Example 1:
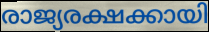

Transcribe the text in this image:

രാജ്യരക്ഷക്കായി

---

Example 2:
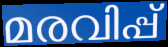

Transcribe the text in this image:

മരവിപ്പ്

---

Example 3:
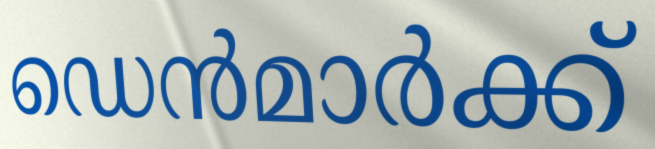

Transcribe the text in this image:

ഡെൻമാർക്ക്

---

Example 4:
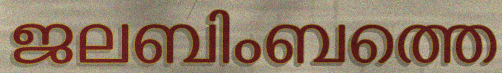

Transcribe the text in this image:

ജലബിംബത്തെ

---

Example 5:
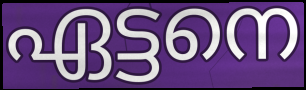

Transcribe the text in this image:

ഏട്ടനെ